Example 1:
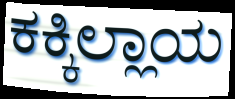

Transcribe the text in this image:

ಕಕ್ಕಿಲ್ಲಾಯ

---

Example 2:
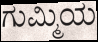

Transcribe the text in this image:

ಗುಮ್ಮಿಯ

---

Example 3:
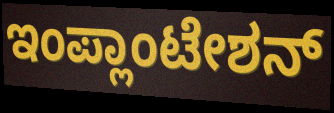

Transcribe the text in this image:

ಇಂಪ್ಲಾಂಟೇಶನ್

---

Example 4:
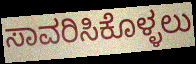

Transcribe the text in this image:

ಸಾವರಿಸಿಕೊಳ್ಳಲು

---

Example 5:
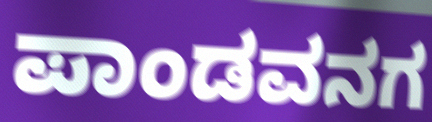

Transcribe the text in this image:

ಪಾಂಡವನಗ